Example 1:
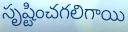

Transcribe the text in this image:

సృష్టించగలిగాయి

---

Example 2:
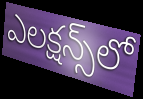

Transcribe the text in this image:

ఎలక్షన్స్‌లో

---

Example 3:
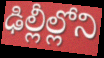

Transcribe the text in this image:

ఢిల్లీల్లోని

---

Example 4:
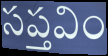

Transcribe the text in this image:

సప్తవిం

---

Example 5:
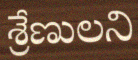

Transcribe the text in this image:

శ్రేణులని